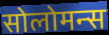
सोलोमन्स